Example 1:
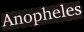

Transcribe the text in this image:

Anopheles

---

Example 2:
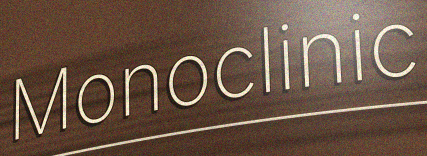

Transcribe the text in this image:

Monoclinic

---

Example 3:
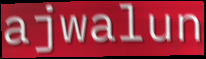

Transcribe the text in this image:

ajwalun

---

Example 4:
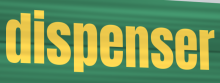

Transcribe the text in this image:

dispenser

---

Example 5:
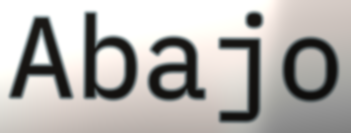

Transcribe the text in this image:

Abajo